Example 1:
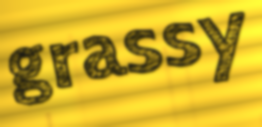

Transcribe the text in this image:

grassy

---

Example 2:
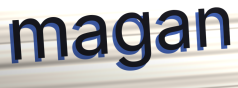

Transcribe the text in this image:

magan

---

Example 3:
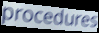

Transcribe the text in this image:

procedures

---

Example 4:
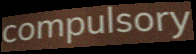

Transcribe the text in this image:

compulsory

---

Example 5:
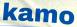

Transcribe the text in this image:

kamo